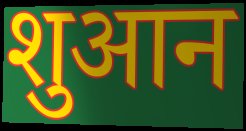
शुआन